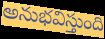
అనుభవిస్తుంది